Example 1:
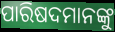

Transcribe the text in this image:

ପାରିଷଦମାନଙ୍କୁ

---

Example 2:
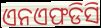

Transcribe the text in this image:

ଏନଏଫଡିସି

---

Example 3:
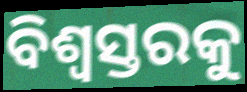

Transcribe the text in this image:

ବିଶ୍ୱସ୍ତରକୁ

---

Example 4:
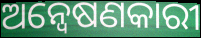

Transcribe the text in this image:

ଅନ୍ୱେଷଣକାରୀ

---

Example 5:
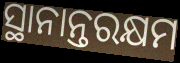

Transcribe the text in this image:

ସ୍ଥାନାନ୍ତରକ୍ଷମ